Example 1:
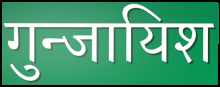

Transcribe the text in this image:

गुन्जायिश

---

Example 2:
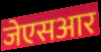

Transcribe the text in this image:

जेएसआर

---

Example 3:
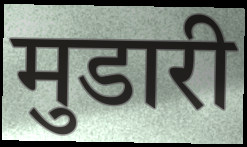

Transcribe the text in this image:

मुडारी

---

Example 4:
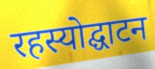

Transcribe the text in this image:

रहस्योद्घाटन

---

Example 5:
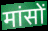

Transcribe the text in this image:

मांसों